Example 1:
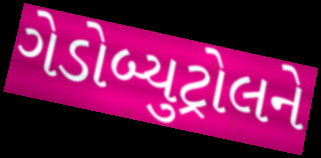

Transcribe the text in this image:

ગેડોબ્યુટ્રોલને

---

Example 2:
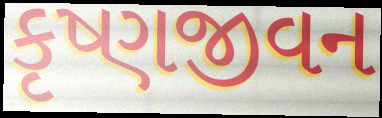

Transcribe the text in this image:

કૃષ્ણજીવન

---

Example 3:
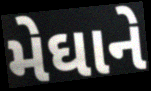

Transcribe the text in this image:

મેઘાને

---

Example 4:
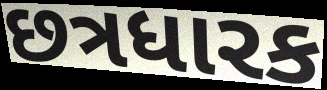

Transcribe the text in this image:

છત્રધારક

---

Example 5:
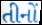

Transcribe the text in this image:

તીનોં